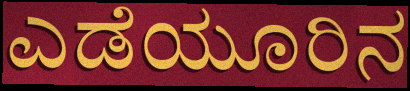
ಎಡೆಯೂರಿನ